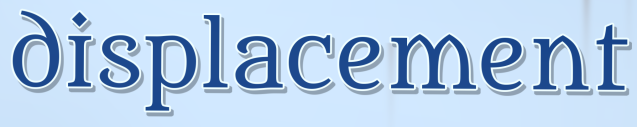
displacement